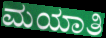
ಮಯಾತಿ